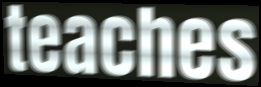
teaches